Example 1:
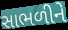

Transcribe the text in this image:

સાભળીને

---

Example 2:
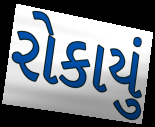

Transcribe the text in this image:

રોકાયું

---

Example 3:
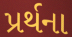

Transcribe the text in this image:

પ્રર્થના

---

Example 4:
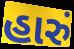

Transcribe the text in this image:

હારું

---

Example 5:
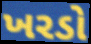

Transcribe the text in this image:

ખરડો